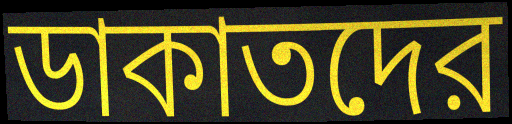
ডাকাতদের